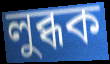
লুব্ধক